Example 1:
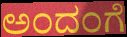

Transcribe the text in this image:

ಅಂದಂಗೆ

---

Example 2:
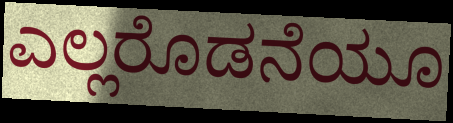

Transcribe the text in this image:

ಎಲ್ಲರೊಡನೆಯೂ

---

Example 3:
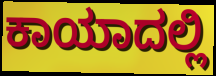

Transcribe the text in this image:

ಕಾಯಾದಲ್ಲಿ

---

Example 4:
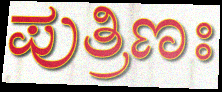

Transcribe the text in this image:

ಪುತ್ರಿಣಃ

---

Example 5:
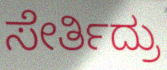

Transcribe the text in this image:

ಸೇರ್ತಿದ್ರು